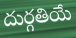
దుర్గతియే